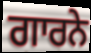
ਗਾਰਨੇ